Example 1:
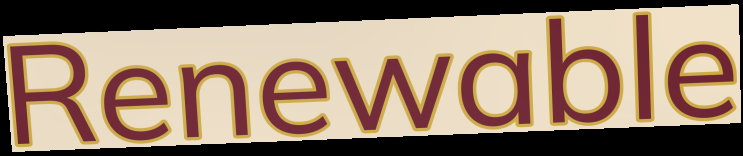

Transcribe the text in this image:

Renewable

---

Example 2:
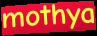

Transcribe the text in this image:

mothya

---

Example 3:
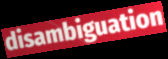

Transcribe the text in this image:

disambiguation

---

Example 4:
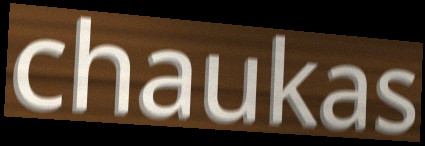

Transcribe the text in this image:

chaukas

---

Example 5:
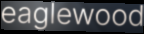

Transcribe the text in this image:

eaglewood